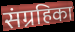
संग्रहिका